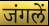
जंगलें